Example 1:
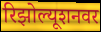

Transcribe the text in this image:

रिझोल्यूशनवर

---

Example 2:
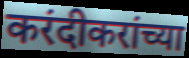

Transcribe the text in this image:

करंदीकरांच्या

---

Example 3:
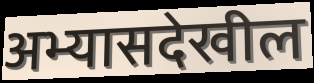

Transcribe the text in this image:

अभ्यासदेखील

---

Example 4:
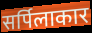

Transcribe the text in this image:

सर्पिलाकार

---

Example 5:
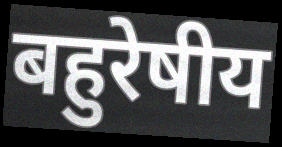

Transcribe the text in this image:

बहुरेषीय